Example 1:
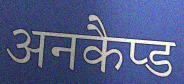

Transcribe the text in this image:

अनकैप्ड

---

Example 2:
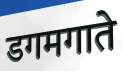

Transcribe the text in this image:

डगमगाते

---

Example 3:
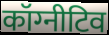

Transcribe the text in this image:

कॉग्‍नीटिव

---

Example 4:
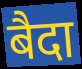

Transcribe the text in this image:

बैदा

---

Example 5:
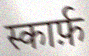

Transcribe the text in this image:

स्कार्फ़